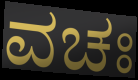
ವಚಃ